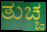
ತುಚ್ಚ